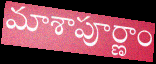
మాశాపూర్ణాం